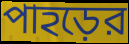
পাহড়ের